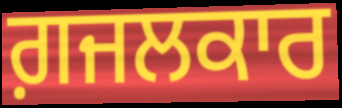
ਗ਼ਜਲਕਾਰ